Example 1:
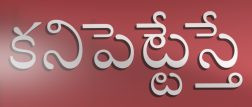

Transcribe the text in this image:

కనిపెట్టేస్తే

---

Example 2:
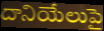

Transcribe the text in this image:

దానియేలుపై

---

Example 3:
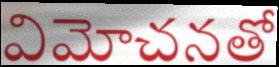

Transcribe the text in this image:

విమోచనతో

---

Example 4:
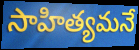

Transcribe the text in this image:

సాహిత్యమనే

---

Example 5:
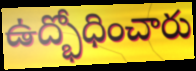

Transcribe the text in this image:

ఉద్భోధించారు